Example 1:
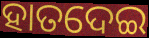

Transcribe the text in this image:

ହାତଦେଇ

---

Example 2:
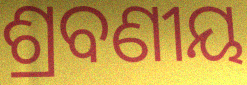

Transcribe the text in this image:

ଶ୍ରବଣୀୟ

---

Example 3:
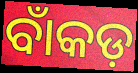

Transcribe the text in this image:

ବାଁକଡ଼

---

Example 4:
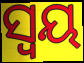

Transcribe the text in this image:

ସ୍ୱୟ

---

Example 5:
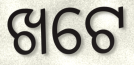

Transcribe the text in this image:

ଖଟେ